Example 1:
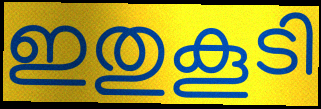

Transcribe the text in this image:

ഇതുകൂടി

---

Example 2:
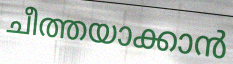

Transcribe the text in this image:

ചീത്തയാക്കാൻ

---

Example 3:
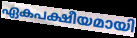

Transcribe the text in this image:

ഏകപക്ഷീയമായി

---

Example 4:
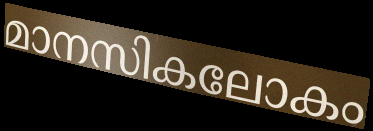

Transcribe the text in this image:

മാനസികലോകം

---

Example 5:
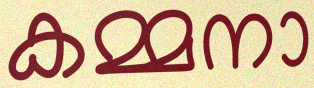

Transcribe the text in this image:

കമ്മനാ